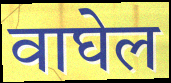
वाघेल